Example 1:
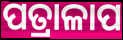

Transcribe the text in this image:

ପତ୍ରାଳାପ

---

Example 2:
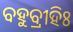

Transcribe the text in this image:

ବହୁବ୍ରୀହିଃ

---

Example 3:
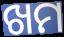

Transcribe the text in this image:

ଖମ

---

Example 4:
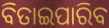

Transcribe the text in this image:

ବିତାଇପାରିବ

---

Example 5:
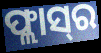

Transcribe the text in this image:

ଫ୍ଲାସ୍‌ର